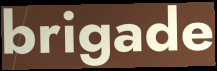
brigade